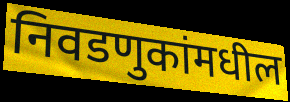
निवडणुकांमधील